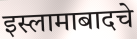
इस्लामाबादचे